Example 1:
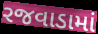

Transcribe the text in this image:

રજવાડામાં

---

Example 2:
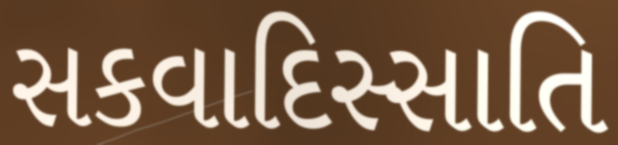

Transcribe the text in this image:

સકવાદિસ્સાતિ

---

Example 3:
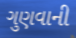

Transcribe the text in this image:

ગુણવાની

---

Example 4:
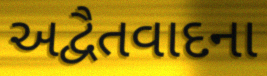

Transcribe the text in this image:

અદ્વૈતવાદના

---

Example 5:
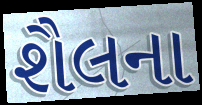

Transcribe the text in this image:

શૈલના